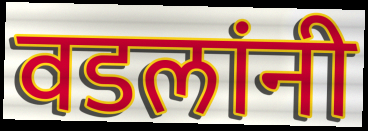
वडलांनी